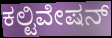
ಕಲ್ಟಿವೇಷನ್